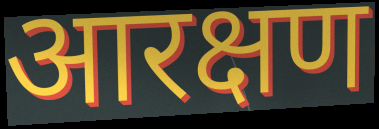
आरक्षण